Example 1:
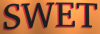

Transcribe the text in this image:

SWET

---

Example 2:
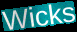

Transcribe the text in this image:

Wicks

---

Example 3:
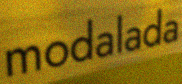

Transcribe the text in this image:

modalada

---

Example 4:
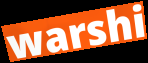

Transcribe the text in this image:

warshi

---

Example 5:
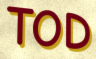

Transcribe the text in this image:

TOD